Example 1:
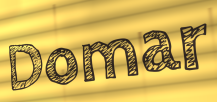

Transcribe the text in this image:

Domar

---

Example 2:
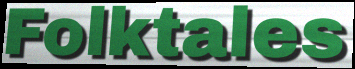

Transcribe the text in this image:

Folktales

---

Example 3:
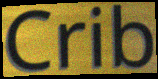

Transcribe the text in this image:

Crib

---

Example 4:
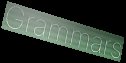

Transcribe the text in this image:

Grammars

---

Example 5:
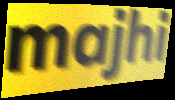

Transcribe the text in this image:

majhi